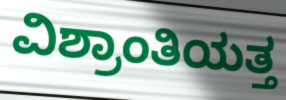
ವಿಶ್ರಾಂತಿಯತ್ತ